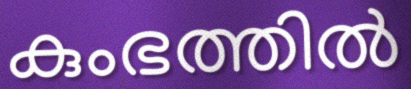
കുംഭത്തിൽ